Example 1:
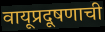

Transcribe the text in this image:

वायूप्रदूषणाची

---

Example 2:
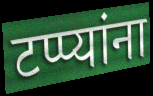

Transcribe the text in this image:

टप्प्यांना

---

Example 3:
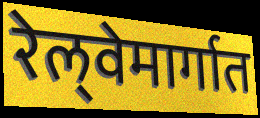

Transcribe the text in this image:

रेल्वेमार्गात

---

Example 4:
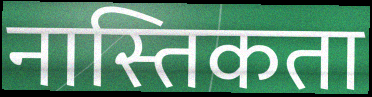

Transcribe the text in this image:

नास्तिकता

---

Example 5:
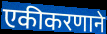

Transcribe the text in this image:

एकीकरणाने